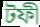
টফী